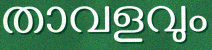
താവളവും